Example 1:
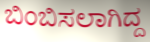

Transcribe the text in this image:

ಬಿಂಬಿಸಲಾಗಿದ್ದ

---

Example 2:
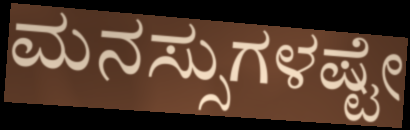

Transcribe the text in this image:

ಮನಸ್ಸುಗಳಷ್ಟೇ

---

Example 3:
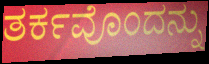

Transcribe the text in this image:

ತರ್ಕವೊಂದನ್ನು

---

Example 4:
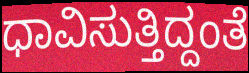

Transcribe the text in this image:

ಧಾವಿಸುತ್ತಿದ್ದಂತೆ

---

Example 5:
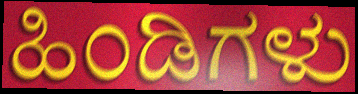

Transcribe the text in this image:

ಹಿಂಡಿಗಳು